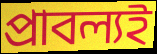
প্রাবল্যই